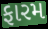
ફારમ